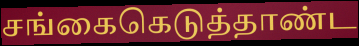
சங்கைகெடுத்தாண்ட